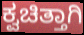
ಕ್ವಚಿತ್ತಾಗಿ